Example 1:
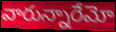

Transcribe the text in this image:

వారున్నారేమో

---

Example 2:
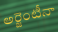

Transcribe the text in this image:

అర్జెంటీనా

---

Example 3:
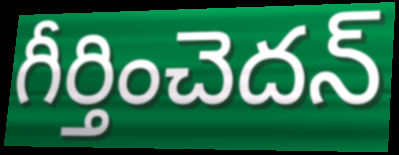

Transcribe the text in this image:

గీర్తించెదన్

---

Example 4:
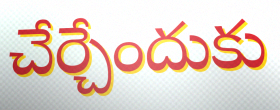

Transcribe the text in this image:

చేర్చేందుకు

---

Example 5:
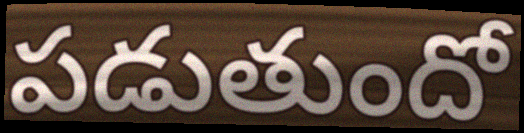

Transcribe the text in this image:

పడుతుందో